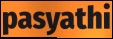
pasyathi